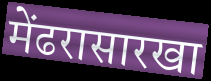
मेंढरासारखा